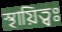
স্থায়িত্বঃ